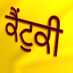
ਕੈਂਟੁਕੀ